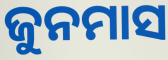
ଜୁନମାସ